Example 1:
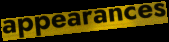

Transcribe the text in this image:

appearances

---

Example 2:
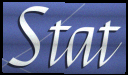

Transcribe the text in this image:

Stat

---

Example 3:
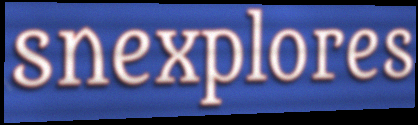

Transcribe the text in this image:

snexplores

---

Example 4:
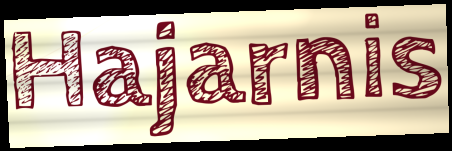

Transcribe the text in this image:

Hajarnis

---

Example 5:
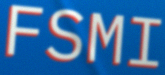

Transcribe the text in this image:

FSMI